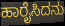
ಹಾರೈಸಿದನು